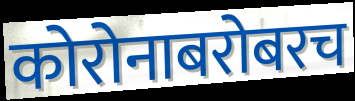
कोरोनाबरोबरच